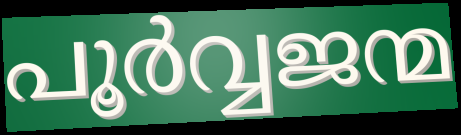
പൂർവ്വജന്മ